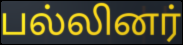
பல்லினர்